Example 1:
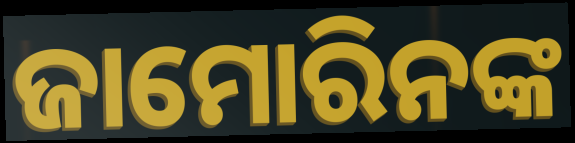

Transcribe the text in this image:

ଜାମୋରିନଙ୍କ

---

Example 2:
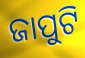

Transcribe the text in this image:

ଜାପୁଟି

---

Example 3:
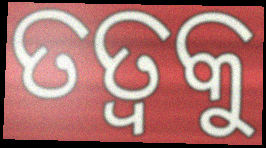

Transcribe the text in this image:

ତତ୍ୱକୁ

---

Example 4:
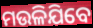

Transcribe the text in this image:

ମଉଳିଯିବେ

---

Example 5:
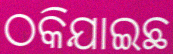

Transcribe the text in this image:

ଠକିଯାଇଛ